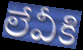
లేవీకి